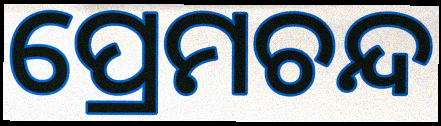
ପ୍ରେମଚନ୍ଦ